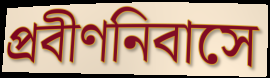
প্রবীণনিবাসে